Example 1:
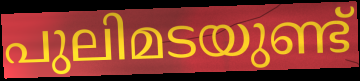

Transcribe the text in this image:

പുലിമടയുണ്ട്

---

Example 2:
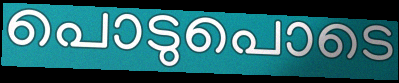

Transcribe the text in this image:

പൊടുപൊടെ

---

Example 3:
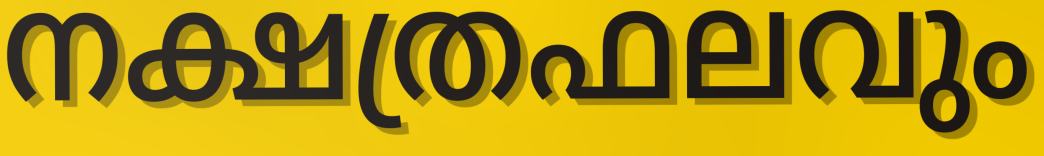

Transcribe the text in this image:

നക്ഷത്രഫലവും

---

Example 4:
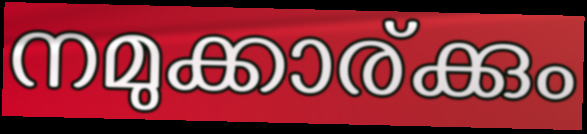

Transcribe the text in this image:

നമുക്കാര്ക്കും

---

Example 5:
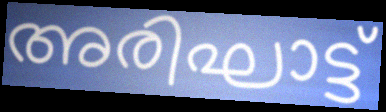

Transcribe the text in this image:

അരിഘാട്ട്